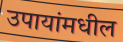
उपायांमधील